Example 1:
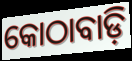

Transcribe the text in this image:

କୋଠାବାଡ଼ି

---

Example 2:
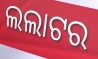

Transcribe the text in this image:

ଲଲାଟର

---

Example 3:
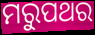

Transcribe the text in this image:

ମରୁପଥର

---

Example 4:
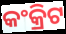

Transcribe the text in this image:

କଂକ୍ରିଟ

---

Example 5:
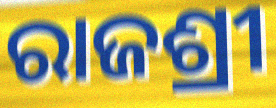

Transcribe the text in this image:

ରାଜଶ୍ରୀ